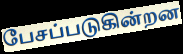
பேசப்படுகின்றன